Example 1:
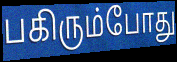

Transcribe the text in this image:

பகிரும்போது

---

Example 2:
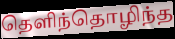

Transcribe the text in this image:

தெளிந்தொழிந்த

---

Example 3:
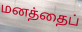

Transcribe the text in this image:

மனத்தைப்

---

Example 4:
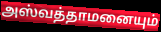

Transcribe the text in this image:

அஸ்வத்தாமனையும்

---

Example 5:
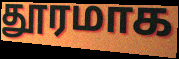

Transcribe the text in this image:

தூரமாக